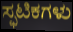
ಸ್ಫಟಿಕಗಳು